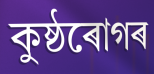
কুষ্ঠৰোগৰ